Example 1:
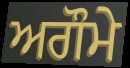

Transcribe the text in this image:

ਅਗੌਮੇ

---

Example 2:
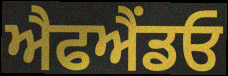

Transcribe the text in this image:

ਐਫਐਂਡਓ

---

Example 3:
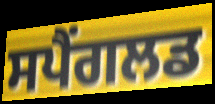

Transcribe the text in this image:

ਸਪੈਂਗਲਡ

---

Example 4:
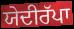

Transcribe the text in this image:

ਯੇਦੀਰੱਪਾ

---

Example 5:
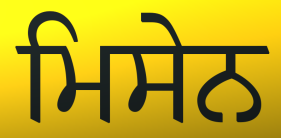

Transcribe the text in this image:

ਮਿਸੇਨ